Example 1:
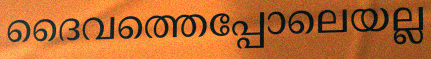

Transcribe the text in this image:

ദൈവത്തെപ്പോലെയല്ല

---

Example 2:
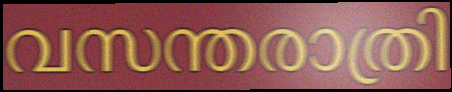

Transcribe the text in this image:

വസന്തരാത്രി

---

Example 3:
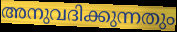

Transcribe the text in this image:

അനുവദിക്കുന്നതും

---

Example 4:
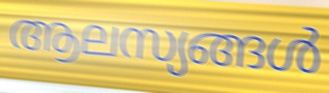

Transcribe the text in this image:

ആലസ്യങ്ങൾ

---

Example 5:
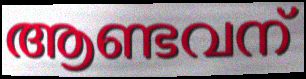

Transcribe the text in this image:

ആണ്ടവന്